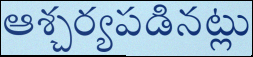
ఆశ్చర్యపడినట్లు